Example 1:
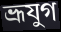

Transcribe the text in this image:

ভ্রূযুগ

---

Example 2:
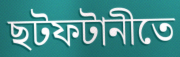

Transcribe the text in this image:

ছটফটানীতে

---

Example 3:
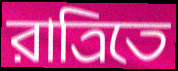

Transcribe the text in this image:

রাত্রিতে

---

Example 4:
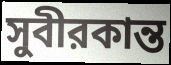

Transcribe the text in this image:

সুবীরকান্ত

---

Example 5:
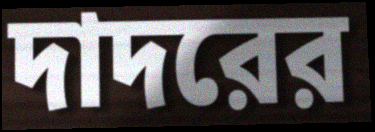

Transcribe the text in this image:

দাদরের